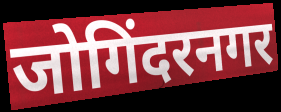
जोगिंदरनगर